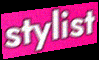
stylist